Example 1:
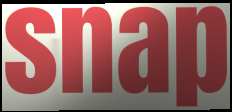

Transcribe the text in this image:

snap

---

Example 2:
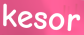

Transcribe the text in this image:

kesor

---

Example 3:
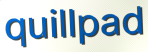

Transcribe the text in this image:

quillpad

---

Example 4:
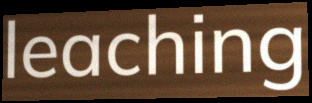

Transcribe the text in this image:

leaching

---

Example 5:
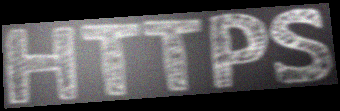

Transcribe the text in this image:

HTTPS